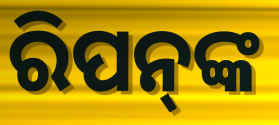
ରିପନ୍‍ଙ୍କ